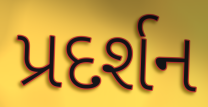
પ્રદર્શન